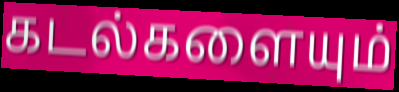
கடல்களையும்